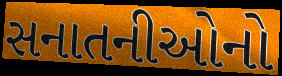
સનાતનીઓનો